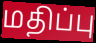
மதிப்பு